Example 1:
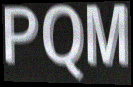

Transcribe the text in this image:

PQM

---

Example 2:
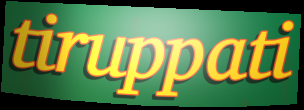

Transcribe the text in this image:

tiruppati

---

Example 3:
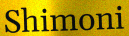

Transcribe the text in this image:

Shimoni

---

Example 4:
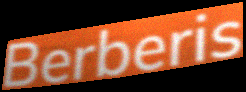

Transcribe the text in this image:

Berberis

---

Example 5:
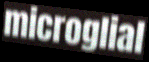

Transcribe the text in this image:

microglial